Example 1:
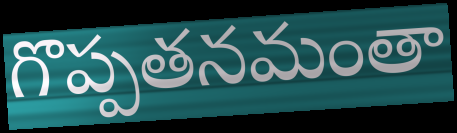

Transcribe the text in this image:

గొప్పతనమంతా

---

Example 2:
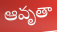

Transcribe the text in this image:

ఆవృతా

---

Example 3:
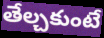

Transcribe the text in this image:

తేల్చకుంటే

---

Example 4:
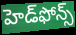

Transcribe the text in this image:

హెడ్‌ఫోన్స్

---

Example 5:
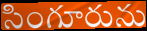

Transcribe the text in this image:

సింగూరును